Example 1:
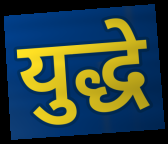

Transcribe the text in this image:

युद्धे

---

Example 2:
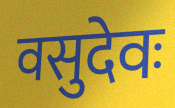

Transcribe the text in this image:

वसुदेवः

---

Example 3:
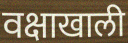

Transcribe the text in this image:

वक्षाखाली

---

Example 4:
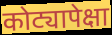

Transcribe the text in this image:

कोट्यापेक्षा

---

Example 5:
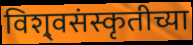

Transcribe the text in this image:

विश्र्वसंस्कृतीच्या